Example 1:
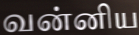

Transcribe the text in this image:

வன்னிய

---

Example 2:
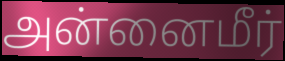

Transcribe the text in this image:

அன்னைமீர்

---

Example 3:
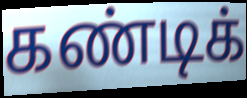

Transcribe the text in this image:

கண்டிக்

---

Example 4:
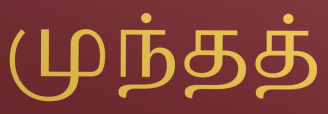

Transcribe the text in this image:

முந்தத்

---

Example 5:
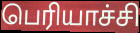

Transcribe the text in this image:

பெரியாச்சி